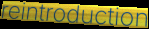
reintroduction